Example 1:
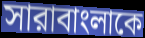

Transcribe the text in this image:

সারাবাংলাকে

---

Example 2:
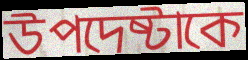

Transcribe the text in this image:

উপদেষ্টাকে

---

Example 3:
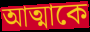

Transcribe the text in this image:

আত্মাকে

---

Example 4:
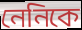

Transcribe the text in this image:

নেনিকে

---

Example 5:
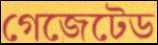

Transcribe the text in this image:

গেজেটেড